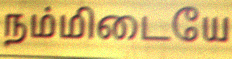
நம்மிடையே